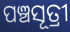
ପଞ୍ଚସୂତ୍ରୀ